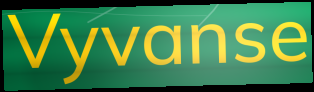
Vyvanse